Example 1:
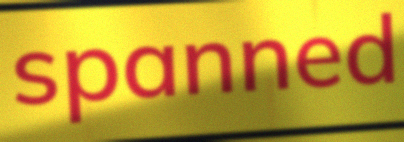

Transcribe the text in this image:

spanned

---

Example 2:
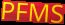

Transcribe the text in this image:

PFMS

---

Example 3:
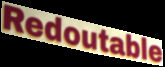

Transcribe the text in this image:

Redoutable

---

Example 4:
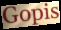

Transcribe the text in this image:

Gopis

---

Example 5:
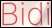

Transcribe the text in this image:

Bidi